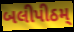
બલીપીઠમ્